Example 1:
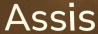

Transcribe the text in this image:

Assis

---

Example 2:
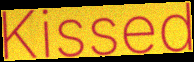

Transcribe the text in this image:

Kissed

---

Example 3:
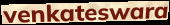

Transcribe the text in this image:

venkateswara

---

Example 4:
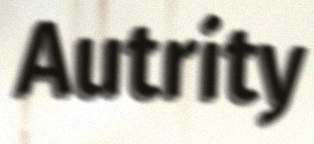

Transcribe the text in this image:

Autrity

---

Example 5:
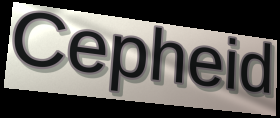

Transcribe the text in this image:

Cepheid